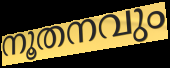
നൂതനവും